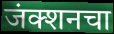
जंक्‍शनचा